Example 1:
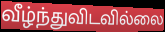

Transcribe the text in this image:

வீழ்ந்துவிடவில்லை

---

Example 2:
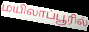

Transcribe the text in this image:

மயிலாப்பூரில்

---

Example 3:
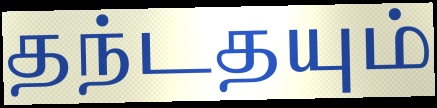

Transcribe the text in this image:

தந்டதயும்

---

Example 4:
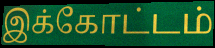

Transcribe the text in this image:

இக்கோட்டம்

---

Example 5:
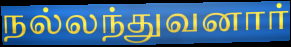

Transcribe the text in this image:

நல்லந்துவனார்